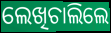
ଲେଖିଚାଲିଲେ